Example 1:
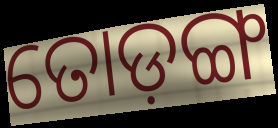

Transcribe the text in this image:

ତୋଡ଼ଙ୍ଗ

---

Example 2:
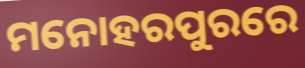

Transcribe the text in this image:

ମନୋହରପୁରରେ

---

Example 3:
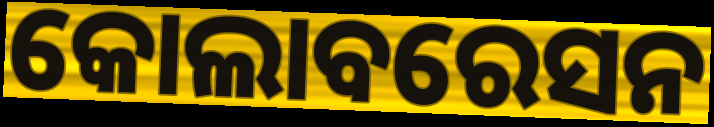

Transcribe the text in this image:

କୋଲାବରେସନ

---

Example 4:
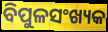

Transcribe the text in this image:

ବିପୁଳସଂଖ୍ୟକ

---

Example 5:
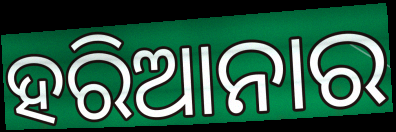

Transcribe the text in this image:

ହରିଆନାର